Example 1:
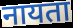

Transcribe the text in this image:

नायता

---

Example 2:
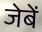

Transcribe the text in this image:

जेबें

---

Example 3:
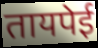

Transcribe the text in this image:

तायपेई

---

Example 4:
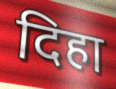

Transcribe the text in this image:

दिहा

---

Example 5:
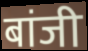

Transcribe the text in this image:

बांजी